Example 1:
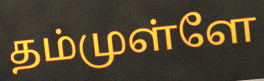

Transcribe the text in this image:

தம்முள்ளே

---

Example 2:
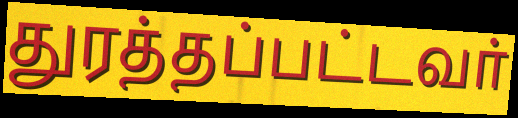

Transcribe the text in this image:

துரத்தப்பட்டவர்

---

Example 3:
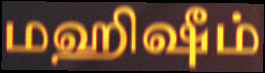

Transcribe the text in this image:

மஹிஷீம்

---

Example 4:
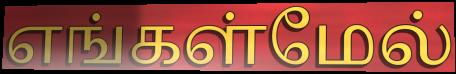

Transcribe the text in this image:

எங்கள்மேல்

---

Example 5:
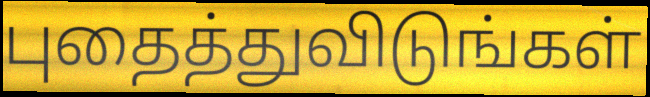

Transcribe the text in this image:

புதைத்துவிடுங்கள்